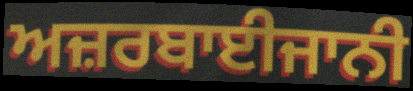
ਅਜ਼ਰਬਾਈਜਾਨੀ